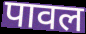
पावल